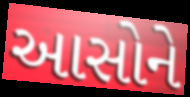
આસોને